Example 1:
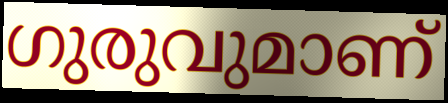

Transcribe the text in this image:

ഗുരുവുമാണ്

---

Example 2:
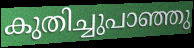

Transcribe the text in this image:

കുതിച്ചുപാഞ്ഞു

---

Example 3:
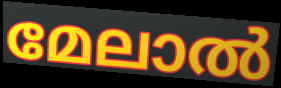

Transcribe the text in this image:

മേലാൽ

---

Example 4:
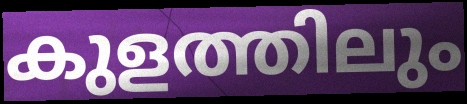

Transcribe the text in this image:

കുളത്തിലും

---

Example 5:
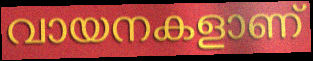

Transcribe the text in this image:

വായനകളാണ്